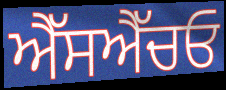
ਐੱਸਐੱਚਓ